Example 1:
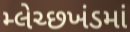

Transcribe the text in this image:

મ્લેચ્છખંડમાં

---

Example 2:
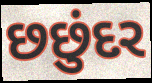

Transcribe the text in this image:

છછુંદર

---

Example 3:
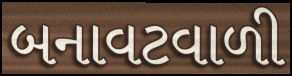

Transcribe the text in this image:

બનાવટવાળી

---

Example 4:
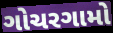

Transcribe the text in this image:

ગોચરગામો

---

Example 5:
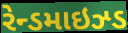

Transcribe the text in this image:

રેન્ડમાઇઝ્ડ